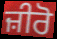
ਜ਼ੀਰੋ